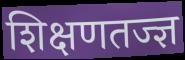
शिक्षणतज्ज्ञ